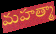
మహత్మా